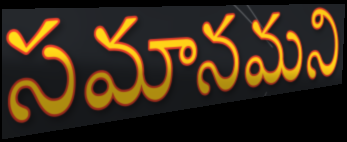
సమానమని